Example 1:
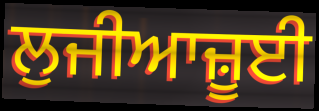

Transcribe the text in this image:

ਲੁਜੀਆਜ਼ੂਈ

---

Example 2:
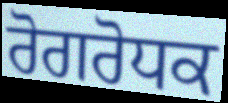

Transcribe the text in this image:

ਰੋਗਰੋਧਕ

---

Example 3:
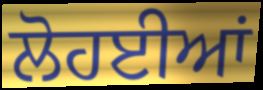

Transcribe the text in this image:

ਲੋਹਈਆਂ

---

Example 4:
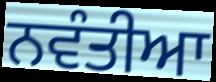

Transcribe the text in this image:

ਨਵੰਤੀਆ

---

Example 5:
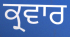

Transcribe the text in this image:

ਕ੍ਰਵਾਰ